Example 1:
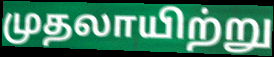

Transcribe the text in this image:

முதலாயிற்று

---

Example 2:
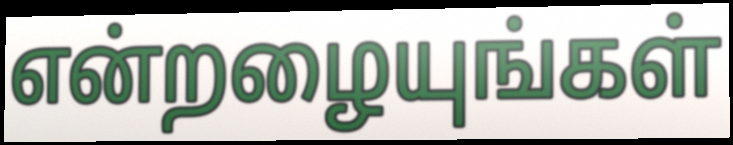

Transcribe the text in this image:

என்றழையுங்கள்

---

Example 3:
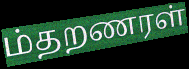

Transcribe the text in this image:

ம்தறணரள்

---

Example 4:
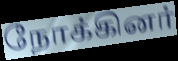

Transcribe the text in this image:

நோக்கினர்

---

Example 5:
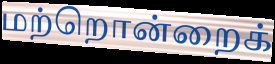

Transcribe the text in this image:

மற்றொன்றைக்